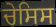
ਚੇਸਿਸ